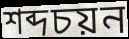
শব্দচয়ন